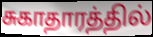
சுகாதாரத்தில்